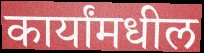
कार्यांमधील